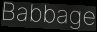
Babbage